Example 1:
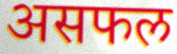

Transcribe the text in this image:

असफल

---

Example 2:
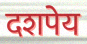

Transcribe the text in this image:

दशपेय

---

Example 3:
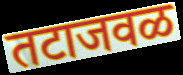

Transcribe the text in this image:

तटाजवळ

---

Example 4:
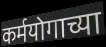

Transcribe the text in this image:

कर्मयोगाच्या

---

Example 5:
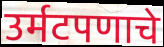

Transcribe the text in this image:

उर्मटपणाचे